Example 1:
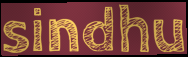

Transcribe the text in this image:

sindhu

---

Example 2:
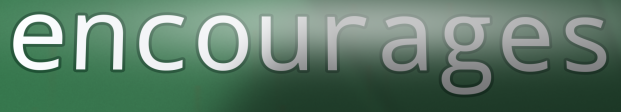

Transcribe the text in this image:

encourages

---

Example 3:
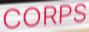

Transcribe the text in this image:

CORPS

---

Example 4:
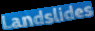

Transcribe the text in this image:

Landslides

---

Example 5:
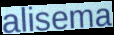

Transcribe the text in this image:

alisema